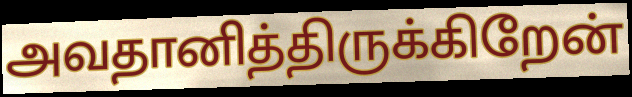
அவதானித்திருக்கிறேன்